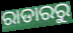
ରାଡାରରୁ